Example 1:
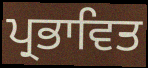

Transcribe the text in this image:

ਪ੍ਰਭਾਵਿਤ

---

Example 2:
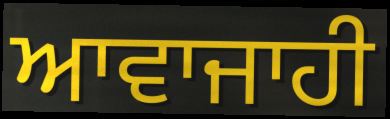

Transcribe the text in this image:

ਆਵਾਜਾਹੀ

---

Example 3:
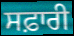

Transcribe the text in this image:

ਸਫ਼ਾਰੀ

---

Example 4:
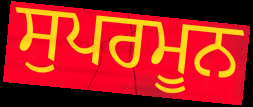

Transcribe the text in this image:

ਸੁਪਰਮੂਨ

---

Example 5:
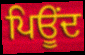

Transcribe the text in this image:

ਪਿਊਂਦ